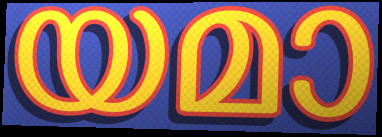
യമാ